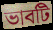
ভাবটি